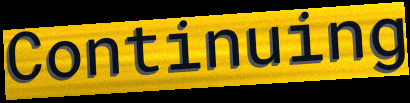
Continuing